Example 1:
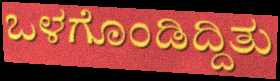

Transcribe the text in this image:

ಒಳಗೊಂಡಿದ್ದಿತು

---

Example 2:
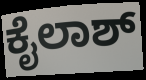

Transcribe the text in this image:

ಕೈಲಾಶ್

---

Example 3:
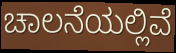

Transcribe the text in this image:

ಚಾಲನೆಯಲ್ಲಿವೆ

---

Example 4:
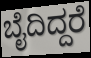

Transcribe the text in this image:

ಬೈದಿದ್ದರೆ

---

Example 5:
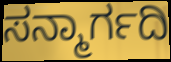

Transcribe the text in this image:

ಸನ್ಮಾರ್ಗದಿ